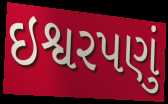
ઇશ્વરપણું